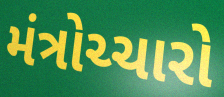
મંત્રોચ્ચારો